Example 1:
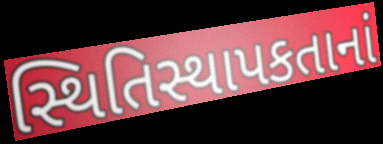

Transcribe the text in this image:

સ્થિતિસ્થાપકતાનાં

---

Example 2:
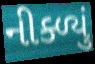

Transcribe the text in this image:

નીક્ળ્યું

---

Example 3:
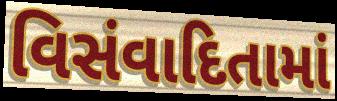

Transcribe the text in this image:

વિસંવાદિતામાં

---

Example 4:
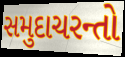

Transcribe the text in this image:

સમુદાચરન્તો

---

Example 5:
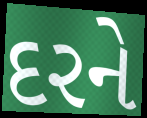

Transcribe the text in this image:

દરને